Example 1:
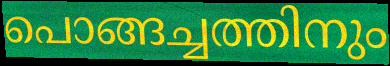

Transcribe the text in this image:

പൊങ്ങച്ചത്തിനും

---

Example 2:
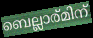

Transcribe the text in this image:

ബെല്ലാര്മിന്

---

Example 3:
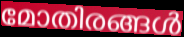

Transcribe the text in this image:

മോതിരങ്ങൾ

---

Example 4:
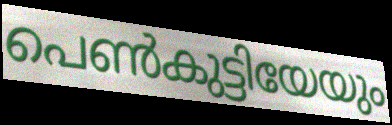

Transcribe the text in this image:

പെൺകുട്ടിയേയും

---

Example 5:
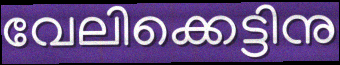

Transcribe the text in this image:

വേലിക്കെട്ടിനു